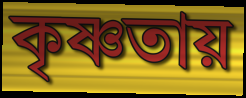
কৃষ্ণতায়